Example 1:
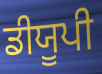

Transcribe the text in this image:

ਡੀਯੂਪੀ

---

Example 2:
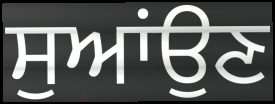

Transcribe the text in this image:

ਸੁਆਂਉਣ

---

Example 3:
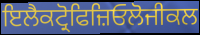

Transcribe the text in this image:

ਇਲੈਕਟ੍ਰੋਫਿਜ਼ਿਓਲੋਜੀਕਲ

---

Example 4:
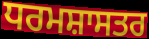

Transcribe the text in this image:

ਧਰਮਸ਼ਾਸਤਰ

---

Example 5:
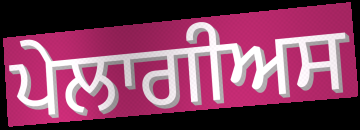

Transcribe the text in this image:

ਪੇਲਾਗੀਅਸ